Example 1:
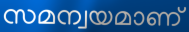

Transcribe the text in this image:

സമന്വയമാണ്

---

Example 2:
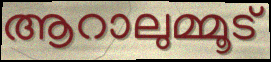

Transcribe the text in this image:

ആറാലുമ്മൂട്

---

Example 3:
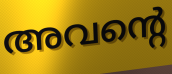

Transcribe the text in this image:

അവന്റെ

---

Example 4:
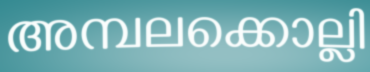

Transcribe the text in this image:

അമ്പലക്കൊല്ലി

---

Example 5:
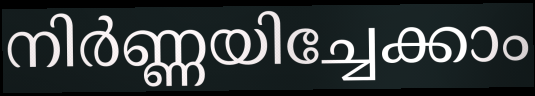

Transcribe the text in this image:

നിർണ്ണയിച്ചേക്കാം